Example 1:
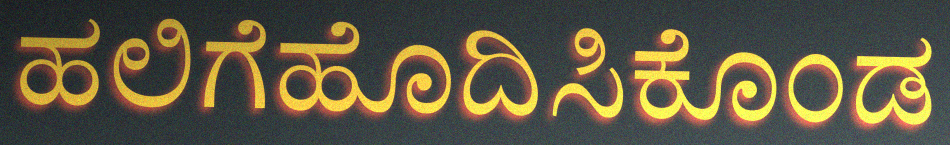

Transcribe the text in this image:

ಹಲಿಗೆಹೊದಿಸಿಕೊಂಡ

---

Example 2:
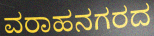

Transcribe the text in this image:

ವರಾಹನಗರದ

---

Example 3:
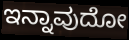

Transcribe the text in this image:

ಇನ್ನಾವುದೋ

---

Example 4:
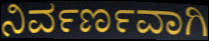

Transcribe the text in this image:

ನಿರ್ವರ್ಣವಾಗಿ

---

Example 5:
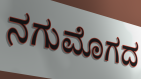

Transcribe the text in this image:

ನಗುಮೊಗದ